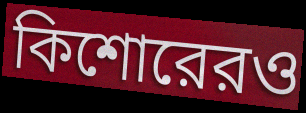
কিশোরেরও